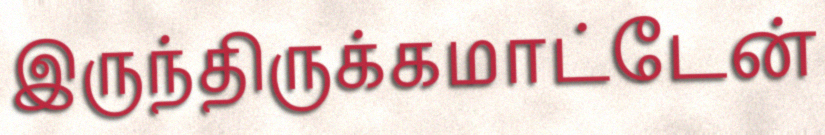
இருந்திருக்கமாட்டேன்